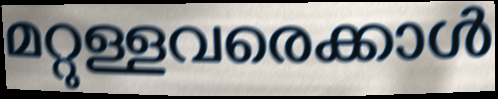
മറ്റുള്ളവരെക്കാൾ